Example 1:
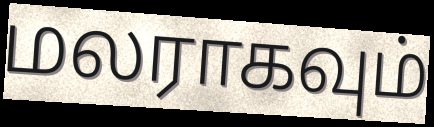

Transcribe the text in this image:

மலராகவும்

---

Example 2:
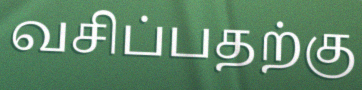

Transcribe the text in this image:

வசிப்பதற்கு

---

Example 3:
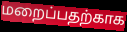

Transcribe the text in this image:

மறைப்பதற்காக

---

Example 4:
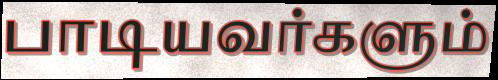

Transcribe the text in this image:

பாடியவர்களும்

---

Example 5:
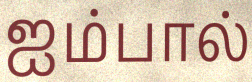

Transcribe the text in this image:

ஐம்பால்